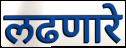
लढणारे